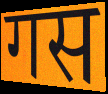
गस